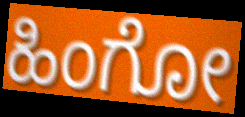
ಹಿಂಗೋ